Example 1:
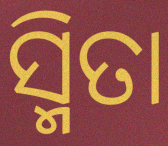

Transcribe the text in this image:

ସ୍ମିତା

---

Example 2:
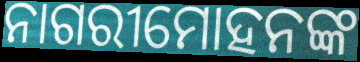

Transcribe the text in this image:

ନାଗରୀମୋହନଙ୍କ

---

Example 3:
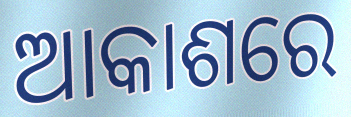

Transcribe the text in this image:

ଆକାଶରେ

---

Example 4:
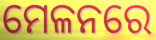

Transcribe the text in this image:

ମେଳନରେ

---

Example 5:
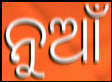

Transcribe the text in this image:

ନୁଆଁ